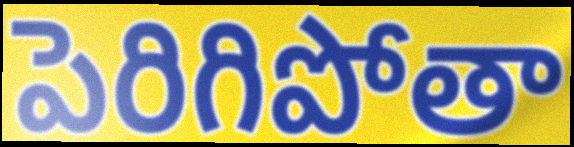
పెరిగిపోతా